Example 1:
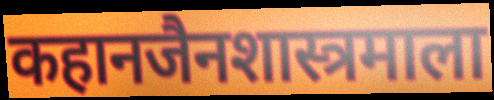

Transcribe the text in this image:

कहानजैनशास्त्रमाला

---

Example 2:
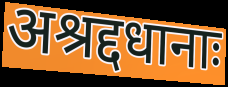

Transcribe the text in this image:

अश्रद्दधानाः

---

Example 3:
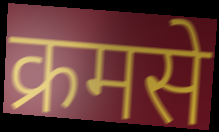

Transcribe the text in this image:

क्रमसे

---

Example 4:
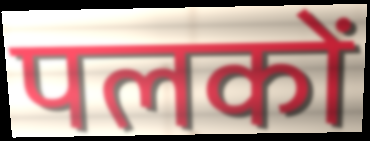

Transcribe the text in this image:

पलकों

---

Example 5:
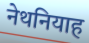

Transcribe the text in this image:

नेथनियाह